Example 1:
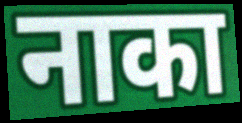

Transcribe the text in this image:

नाका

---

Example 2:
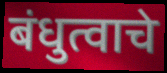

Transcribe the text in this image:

बंधुत्वाचे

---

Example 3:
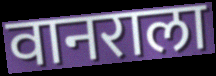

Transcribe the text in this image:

वानराला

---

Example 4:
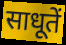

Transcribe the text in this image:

साधूतें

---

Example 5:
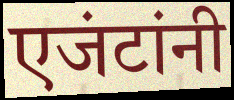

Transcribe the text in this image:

एजंटांनी